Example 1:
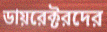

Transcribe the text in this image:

ডায়রেক্টরদের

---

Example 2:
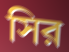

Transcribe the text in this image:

সির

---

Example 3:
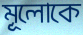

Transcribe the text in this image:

মূলোকে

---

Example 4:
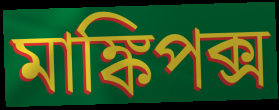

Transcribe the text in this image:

মাঙ্কিপক্স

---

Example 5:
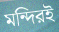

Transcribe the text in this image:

মন্দিরই